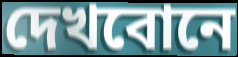
দেখবোনে